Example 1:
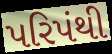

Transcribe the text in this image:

પરિપંથી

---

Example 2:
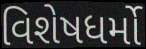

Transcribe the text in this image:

વિશેષધર્મો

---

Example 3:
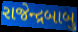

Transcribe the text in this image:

રાજેન્દ્રબાબુ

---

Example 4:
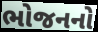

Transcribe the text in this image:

ભોજનનો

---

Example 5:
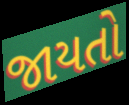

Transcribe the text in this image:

જાયતો